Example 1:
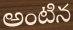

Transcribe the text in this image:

అంటిన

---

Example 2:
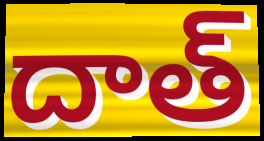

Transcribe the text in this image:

దాత్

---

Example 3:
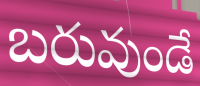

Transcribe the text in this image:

బరువుండే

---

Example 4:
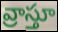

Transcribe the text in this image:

వ్రాస్తూ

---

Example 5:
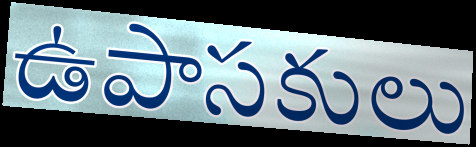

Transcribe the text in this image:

ఉపాసకులు